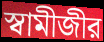
স্বামীজীর